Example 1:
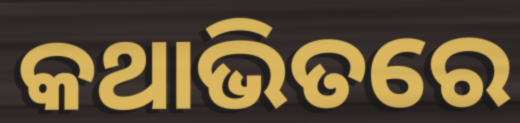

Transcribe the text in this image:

କଥାଭିତରେ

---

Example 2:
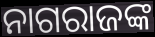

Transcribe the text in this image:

ନାଗରାଜଙ୍କ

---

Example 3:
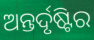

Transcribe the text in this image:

ଅନ୍ତର୍ଦୃଷ୍ଟିର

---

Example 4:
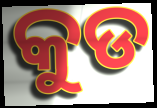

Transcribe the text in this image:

କୁଡ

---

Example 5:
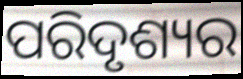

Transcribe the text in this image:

ପରିଦୃଶ୍ୟର